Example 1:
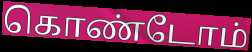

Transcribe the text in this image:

கொண்டோம்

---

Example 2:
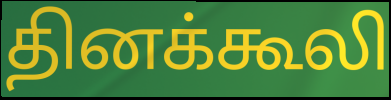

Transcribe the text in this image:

தினக்கூலி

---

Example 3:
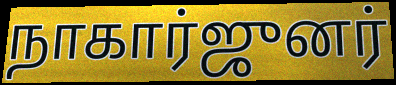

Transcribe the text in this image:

நாகார்ஜுனர்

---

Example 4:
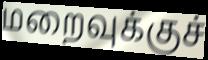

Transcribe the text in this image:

மறைவுக்குச்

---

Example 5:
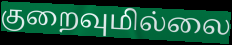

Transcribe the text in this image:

குறைவுமில்லை